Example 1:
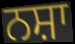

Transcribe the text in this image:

ਨਸ਼ਾ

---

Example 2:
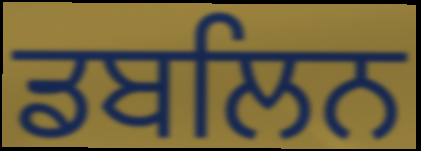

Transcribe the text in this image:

ਡਬਲਿਨ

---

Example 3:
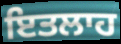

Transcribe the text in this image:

ਇਤਲਾਹ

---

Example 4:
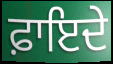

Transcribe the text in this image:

ਫ਼ਾਇਦੇ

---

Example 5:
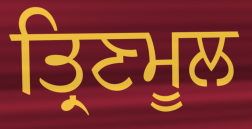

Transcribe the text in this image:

ਤ੍ਰਿਣਮੂਲ